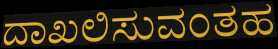
ದಾಖಲಿಸುವಂತಹ